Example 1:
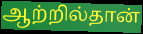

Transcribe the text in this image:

ஆற்றில்தான்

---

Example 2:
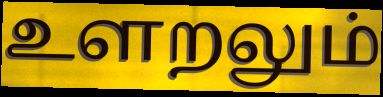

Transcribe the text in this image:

உளறலும்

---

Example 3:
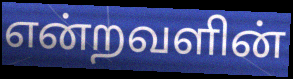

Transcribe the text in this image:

என்றவளின்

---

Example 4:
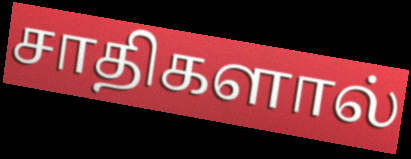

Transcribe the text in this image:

சாதிகளால்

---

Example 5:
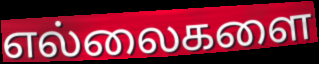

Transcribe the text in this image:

எல்லைகளை